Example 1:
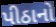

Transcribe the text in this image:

પીઠાનો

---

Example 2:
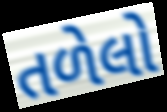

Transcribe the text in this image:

તળેલો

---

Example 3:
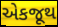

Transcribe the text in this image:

એકજૂથ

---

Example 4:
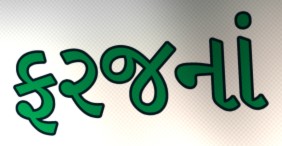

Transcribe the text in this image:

ફરજનાં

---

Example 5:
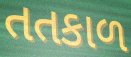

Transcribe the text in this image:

તતકાળ